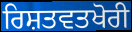
ਰਿਸ਼ਤਵਤਖੋਰੀ